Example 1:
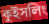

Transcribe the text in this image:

কুইসলিং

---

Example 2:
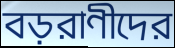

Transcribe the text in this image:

বড়রাণীদের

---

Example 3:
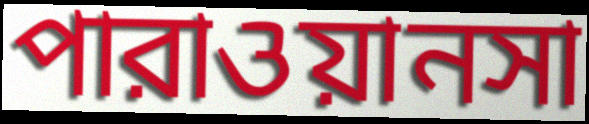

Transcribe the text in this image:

পারাওয়ানসা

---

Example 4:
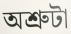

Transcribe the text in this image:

অশ্রুটা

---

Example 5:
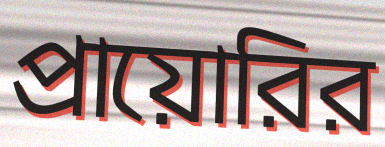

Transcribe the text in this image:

প্রায়োরির